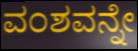
ವಂಶವನ್ನೇ